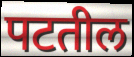
पटतील